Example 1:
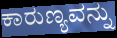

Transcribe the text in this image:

ಕಾರುಣ್ಯವನ್ನು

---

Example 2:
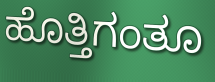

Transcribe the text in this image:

ಹೊತ್ತಿಗಂತೂ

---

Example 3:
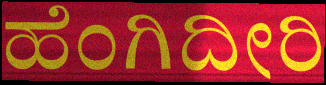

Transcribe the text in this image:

ಹೆಂಗಿದೀರಿ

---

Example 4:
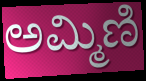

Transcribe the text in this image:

ಅಮ್ಮಿಣಿ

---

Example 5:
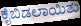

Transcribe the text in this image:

ಕೈಬಿಡಲಾಯಿತು